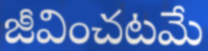
జీవించటమే